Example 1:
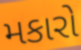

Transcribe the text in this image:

મકારો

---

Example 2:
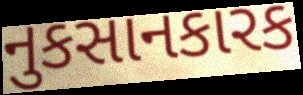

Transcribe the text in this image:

નુકસાનકારક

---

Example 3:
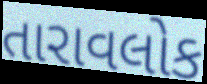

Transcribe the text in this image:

તારાવલોક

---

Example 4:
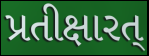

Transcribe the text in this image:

પ્રતીક્ષારત્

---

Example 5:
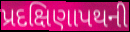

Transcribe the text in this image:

પ્રદક્ષિણાપથની